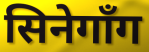
सिनेगाँग